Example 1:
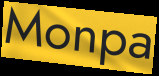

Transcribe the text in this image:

Monpa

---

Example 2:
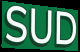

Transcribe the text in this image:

SUD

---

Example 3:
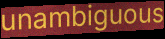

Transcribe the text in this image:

unambiguous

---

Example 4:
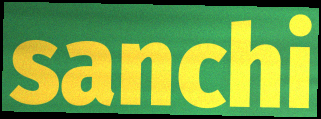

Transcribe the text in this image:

sanchi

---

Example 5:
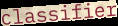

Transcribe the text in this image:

classifier